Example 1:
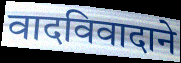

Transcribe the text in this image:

वादविवादाने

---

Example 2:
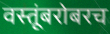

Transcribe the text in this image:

वस्तूंबरोबरच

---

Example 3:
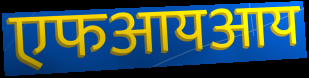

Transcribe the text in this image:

एफआयआय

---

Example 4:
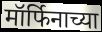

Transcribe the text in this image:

मॉर्फिनाच्या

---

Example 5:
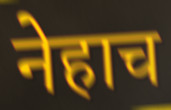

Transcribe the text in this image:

नेहाच